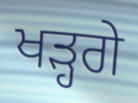
ਖੜ੍ਹਗੇ